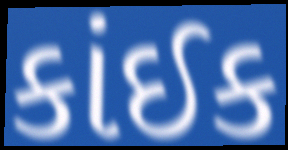
કાંઈક